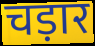
चड़ार